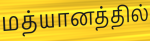
மத்யானத்தில்